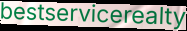
bestservicerealty